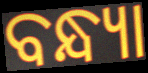
ବନ୍ଧ୍ଯା